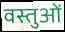
वस्‍तुओं